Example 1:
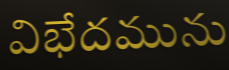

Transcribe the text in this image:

విభేదమును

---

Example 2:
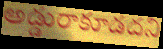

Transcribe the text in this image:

అడ్డురాకూడదని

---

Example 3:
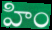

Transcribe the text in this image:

హిం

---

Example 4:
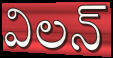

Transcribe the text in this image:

విలన్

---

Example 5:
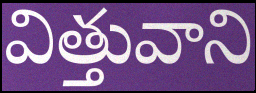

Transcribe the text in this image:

విత్తువాని